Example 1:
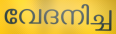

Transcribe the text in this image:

വേദനിച്ച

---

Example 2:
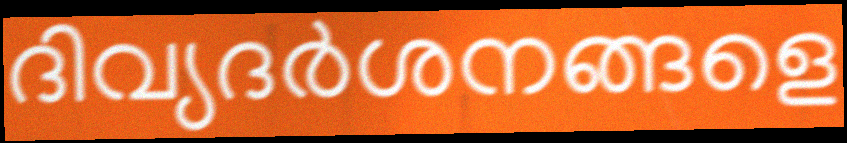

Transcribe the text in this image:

ദിവ്യദർശനങ്ങളെ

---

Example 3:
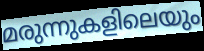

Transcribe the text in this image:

മരുന്നുകളിലെയും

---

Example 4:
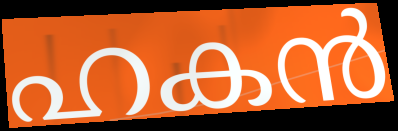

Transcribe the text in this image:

ഹകൻ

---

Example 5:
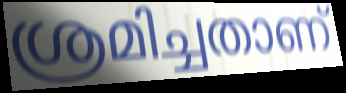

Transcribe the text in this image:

ശ്രമിച്ചതാണ്